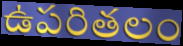
ఉపరితలం